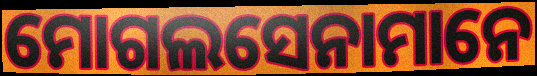
ମୋଗଲସେନାମାନେ